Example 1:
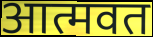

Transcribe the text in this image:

आत्मवत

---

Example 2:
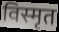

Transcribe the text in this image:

विस्मृत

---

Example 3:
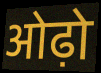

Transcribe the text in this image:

ओढ़ो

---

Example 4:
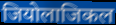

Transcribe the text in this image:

जियोलाजिकल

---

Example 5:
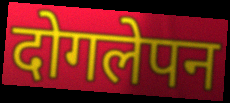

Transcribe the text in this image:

दोगलेपन